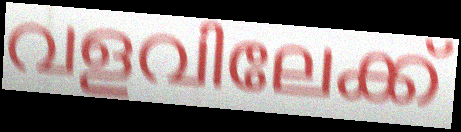
വളവിലേക്ക്